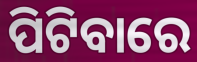
ପିଟିବାରେ